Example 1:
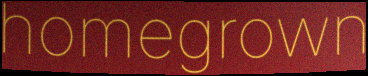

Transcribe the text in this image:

homegrown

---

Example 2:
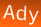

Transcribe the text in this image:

Ady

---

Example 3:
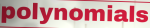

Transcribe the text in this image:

polynomials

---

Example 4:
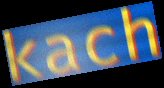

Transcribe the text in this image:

kach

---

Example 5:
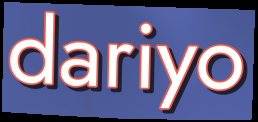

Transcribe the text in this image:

dariyo